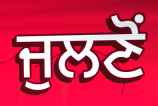
ਜੁਲਣੋਂ